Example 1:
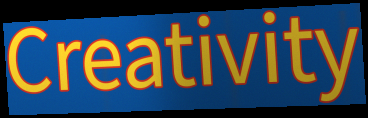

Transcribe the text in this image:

Creativity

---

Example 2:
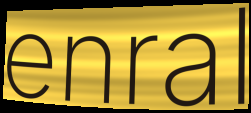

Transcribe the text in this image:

enral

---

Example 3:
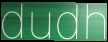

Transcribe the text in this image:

dudh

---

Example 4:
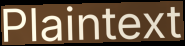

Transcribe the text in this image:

Plaintext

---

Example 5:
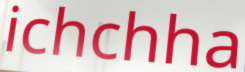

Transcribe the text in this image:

ichchha